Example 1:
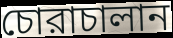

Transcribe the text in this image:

চোরাচালান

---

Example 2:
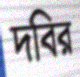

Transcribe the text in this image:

দবির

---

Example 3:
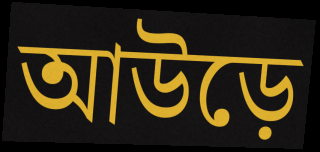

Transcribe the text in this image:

আউড়ে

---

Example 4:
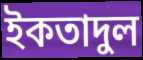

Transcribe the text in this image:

ইকতাদুল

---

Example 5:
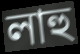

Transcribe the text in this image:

লাহু